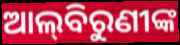
ଆଲ୍‌ବିରୁଣୀଙ୍କ